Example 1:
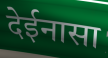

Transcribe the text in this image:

देईनासा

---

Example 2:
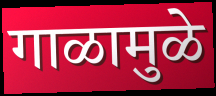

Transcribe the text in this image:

गाळामुळे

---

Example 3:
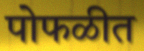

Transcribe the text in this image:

पोफळीत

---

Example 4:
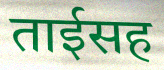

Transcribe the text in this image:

ताईसह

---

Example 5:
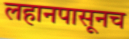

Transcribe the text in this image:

लहानपासूनच